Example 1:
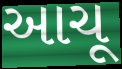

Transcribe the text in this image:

આચૂ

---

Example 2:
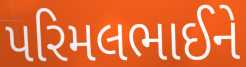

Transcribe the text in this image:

પરિમલભાઈને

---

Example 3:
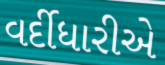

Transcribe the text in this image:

વર્દીધારીએ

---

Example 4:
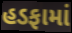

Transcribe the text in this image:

હડફામાં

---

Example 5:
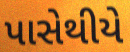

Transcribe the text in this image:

પાસેથીયે